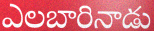
ఎలబారినాడు